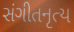
સંગીતનૃત્ય